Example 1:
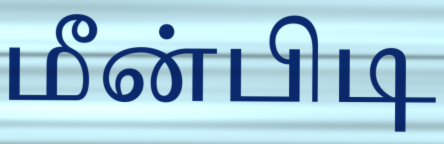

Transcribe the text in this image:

மீன்பிடி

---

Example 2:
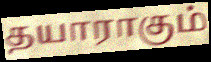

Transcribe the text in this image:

தயாராகும்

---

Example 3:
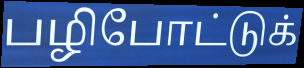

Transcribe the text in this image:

பழிபோட்டுக்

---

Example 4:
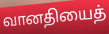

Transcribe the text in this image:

வானதியைத்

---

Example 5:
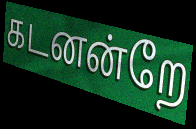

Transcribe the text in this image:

கடனன்றே